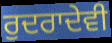
ਰੁਦਰਾਦੇਵੀ